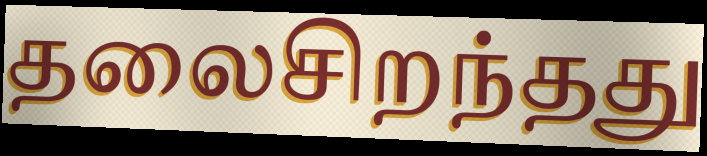
தலைசிறந்தது